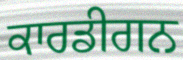
ਕਾਰਡੀਗਨ